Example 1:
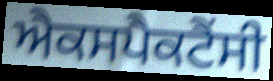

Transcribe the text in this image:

ਐਕਸਪੈਕਟੈਂਸੀ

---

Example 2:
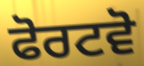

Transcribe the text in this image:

ਫੋਰਟਵੋ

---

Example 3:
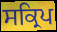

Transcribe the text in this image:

ਸਕ੍ਰਿਪ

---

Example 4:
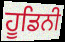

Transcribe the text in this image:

ਹੂਡਿਨੀ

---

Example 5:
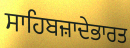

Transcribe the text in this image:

ਸਾਹਿਬਜ਼ਾਦੇਭਾਰਤ